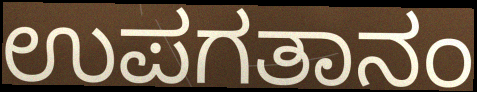
ಉಪಗತಾನಂ